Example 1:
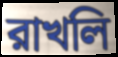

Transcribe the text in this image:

রাখলি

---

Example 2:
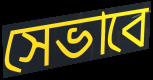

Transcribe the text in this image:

সেভাবে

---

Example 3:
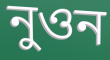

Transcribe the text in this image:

নুওন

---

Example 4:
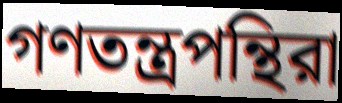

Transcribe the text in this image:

গণতন্ত্রপন্থিরা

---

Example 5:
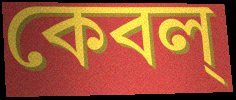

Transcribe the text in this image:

কেবল্